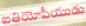
ఐతియోపీయుడు